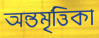
অন্তর্মৃত্তিকা